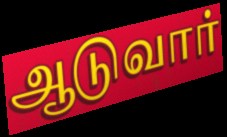
ஆடுவார்